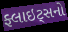
ફ્લાઇટ્સનો